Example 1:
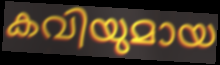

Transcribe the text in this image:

കവിയുമായ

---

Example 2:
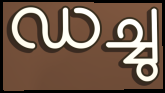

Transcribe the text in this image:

ഡച്ചു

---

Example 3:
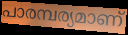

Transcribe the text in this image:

പാരമ്പര്യമാണ്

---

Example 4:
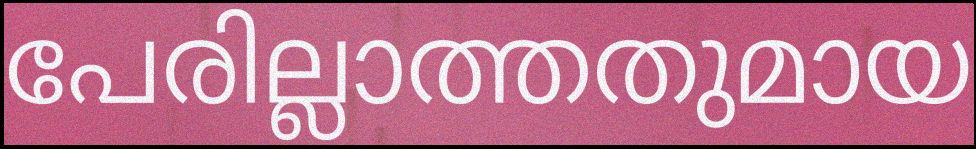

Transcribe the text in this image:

പേരില്ലാത്തതുമായ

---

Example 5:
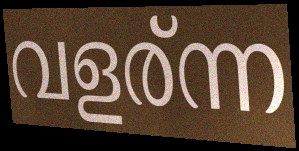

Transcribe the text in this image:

വളര്ന്ന